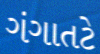
ગંગાતટે